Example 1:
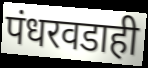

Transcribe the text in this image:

पंधरवडाही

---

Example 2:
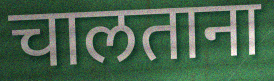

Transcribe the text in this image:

चालताना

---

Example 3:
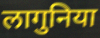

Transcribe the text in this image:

लागुनिया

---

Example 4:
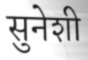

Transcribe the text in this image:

सुनेशी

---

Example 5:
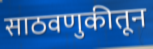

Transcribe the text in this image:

साठवणुकीतून